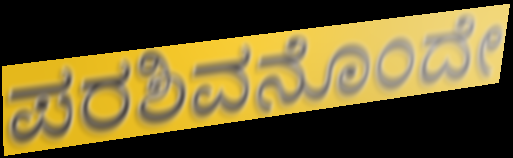
ಪರಶಿವನೊಂದೇ